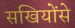
सखियोंसे